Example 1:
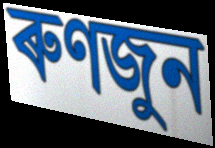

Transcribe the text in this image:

ৰুণজুন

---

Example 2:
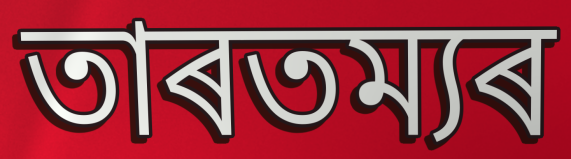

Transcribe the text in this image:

তাৰতম্যৰ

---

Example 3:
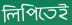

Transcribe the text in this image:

লিপিতেই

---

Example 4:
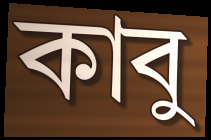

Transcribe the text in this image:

কাবু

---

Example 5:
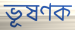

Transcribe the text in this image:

ভূষণক